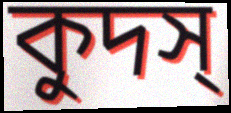
কুদস্